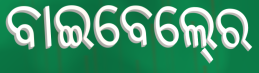
ବାଇବେଲ୍‍ରେ